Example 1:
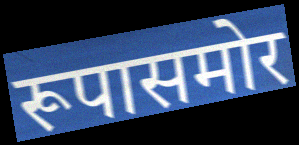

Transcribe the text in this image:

रूपासमोर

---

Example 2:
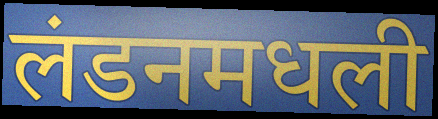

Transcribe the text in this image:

लंडनमधली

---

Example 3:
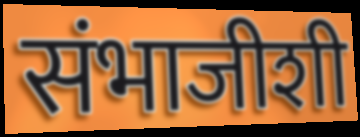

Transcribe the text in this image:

संभाजीशी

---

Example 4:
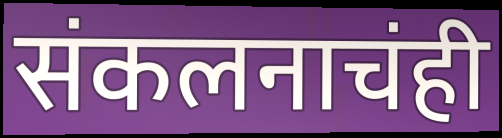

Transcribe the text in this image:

संकलनाचंही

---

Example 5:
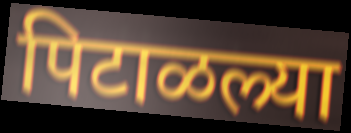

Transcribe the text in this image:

पिटाळल्या